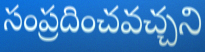
సంప్రదించవచ్చని